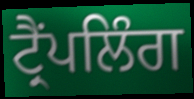
ਟ੍ਰੈਂਪਲਿੰਗ